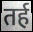
तर्ह